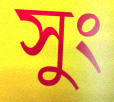
সুং